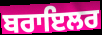
ਬਰਾਇਲਰ